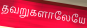
தவறுகளாலேயே